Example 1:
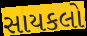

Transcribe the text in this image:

સાયકલો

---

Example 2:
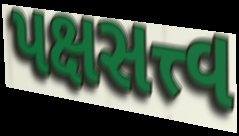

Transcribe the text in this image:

પક્ષસત્ત્વ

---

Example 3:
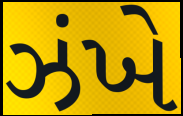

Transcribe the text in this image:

ઝંખે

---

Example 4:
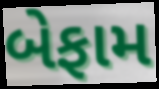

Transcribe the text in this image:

બેફામ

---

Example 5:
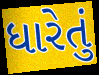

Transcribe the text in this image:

ધારેતું